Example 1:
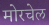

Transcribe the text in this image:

मोरचेल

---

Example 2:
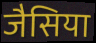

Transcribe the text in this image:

जैसिया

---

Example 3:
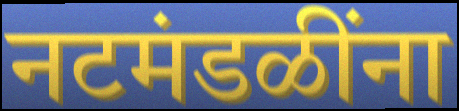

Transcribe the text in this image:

नटमंडळींना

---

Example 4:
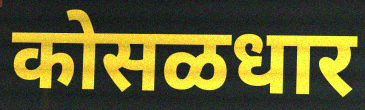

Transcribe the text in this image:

कोसळधार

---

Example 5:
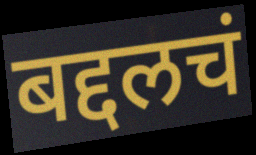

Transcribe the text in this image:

बद्दलचं